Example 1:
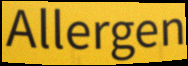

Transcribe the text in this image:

Allergen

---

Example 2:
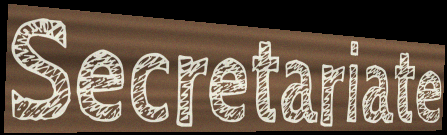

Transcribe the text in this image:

Secretariate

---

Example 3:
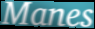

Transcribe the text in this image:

Manes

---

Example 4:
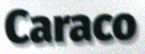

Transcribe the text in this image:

Caraco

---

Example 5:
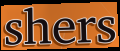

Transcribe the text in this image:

shers